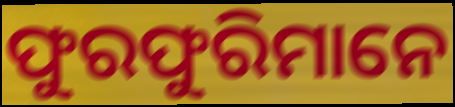
ଫୁରଫୁରିମାନେ